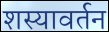
शस्यावर्तन